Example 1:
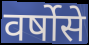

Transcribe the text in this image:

वर्षोसे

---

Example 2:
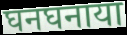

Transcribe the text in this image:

घनघनाया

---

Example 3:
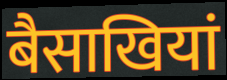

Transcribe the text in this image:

बैसाखियां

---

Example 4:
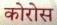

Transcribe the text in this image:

कोरोस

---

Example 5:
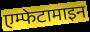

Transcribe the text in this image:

एम्फेटामाइन